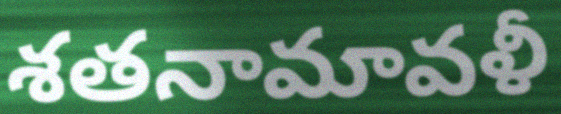
శతనామావళీ